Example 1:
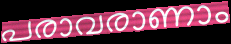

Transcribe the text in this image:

പരാവരാണാം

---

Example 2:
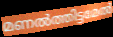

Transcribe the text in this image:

മണൽത്തിട്ടമേൽ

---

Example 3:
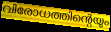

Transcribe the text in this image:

വിരോധത്തിന്റെയും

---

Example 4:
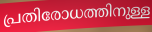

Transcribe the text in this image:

പ്രതിരോധത്തിനുള്ള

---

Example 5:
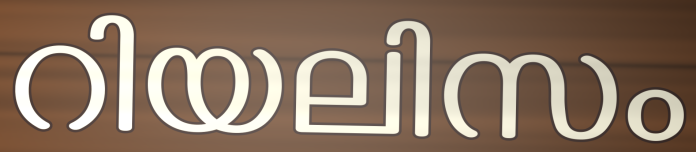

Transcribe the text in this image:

റിയലിസം